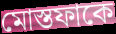
মোস্তফাকে